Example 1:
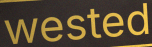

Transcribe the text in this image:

wested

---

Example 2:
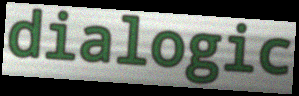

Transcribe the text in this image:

dialogic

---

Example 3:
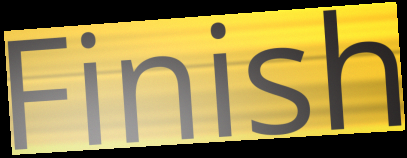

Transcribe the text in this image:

Finish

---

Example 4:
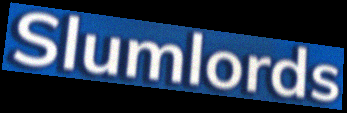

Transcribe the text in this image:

Slumlords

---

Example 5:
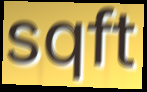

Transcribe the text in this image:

sqft